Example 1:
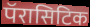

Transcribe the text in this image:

पॅरासिटिक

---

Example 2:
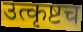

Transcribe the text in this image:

उत्कृष्टच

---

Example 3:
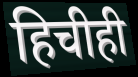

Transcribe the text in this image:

हिचीही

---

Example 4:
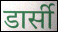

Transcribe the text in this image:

डार्सी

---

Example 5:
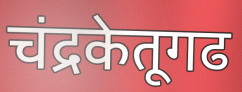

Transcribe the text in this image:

चंद्रकेतूगढ